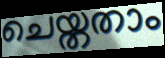
ചെയ്തതാം